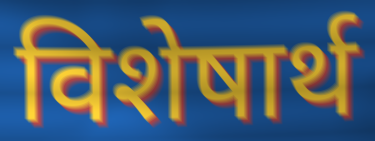
विशेषार्थ